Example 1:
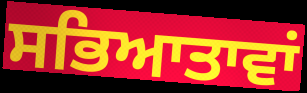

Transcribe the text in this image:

ਸਭਿਆਤਾਵਾਂ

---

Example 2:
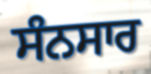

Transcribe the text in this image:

ਸੰਨਸਾਰ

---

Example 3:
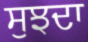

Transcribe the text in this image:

ਸੁਝਦਾ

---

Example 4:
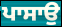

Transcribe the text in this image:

ਪਾਸਾਉ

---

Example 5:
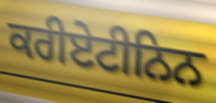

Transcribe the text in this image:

ਕਰੀਏਟੀਨਿਨ